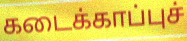
கடைக்காப்புச்